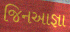
જિનઆજ્ઞા